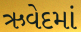
ઋવેદમાં